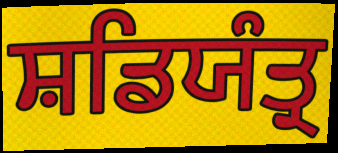
ਸ਼ਡਿਯੰਤ੍ਰ